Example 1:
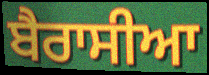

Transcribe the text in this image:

ਬੈਰਾਸੀਆ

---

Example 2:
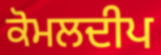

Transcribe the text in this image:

ਕੋਮਲਦੀਪ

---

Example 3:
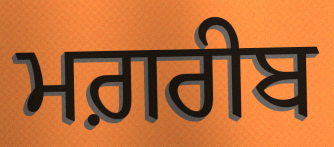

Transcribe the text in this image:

ਮਗ਼ਰੀਬ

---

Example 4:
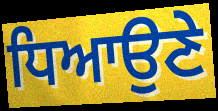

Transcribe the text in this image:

ਧਿਆਉਣੇ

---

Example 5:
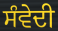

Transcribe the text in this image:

ਸੰਵੇਦੀ